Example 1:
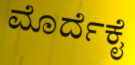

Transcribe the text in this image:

ಮೊರ್ದೆಕೈ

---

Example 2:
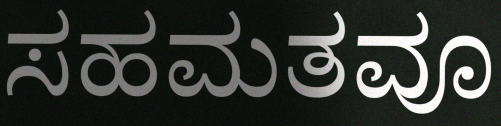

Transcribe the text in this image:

ಸಹಮತವೂ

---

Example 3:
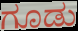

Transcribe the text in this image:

ಗೂಡು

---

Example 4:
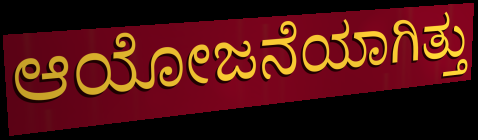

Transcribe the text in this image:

ಆಯೋಜನೆಯಾಗಿತ್ತು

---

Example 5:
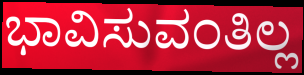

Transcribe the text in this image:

ಭಾವಿಸುವಂತಿಲ್ಲ